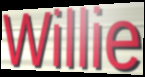
Willie